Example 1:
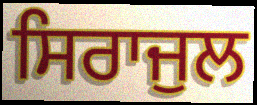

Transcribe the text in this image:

ਸਿਰਾਜੁਲ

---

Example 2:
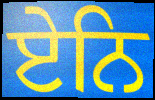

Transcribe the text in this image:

ਏਨਿ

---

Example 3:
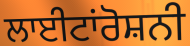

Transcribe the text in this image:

ਲਾਈਟਾਂਰੋਸ਼ਨੀ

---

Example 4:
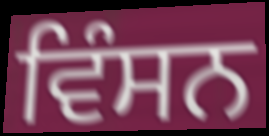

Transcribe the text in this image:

ਵਿੰਸਨ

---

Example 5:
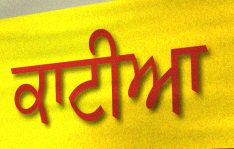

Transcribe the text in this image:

ਕਾਟੀਆ